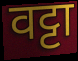
वट्टा